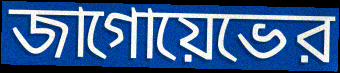
জাগোয়েভের